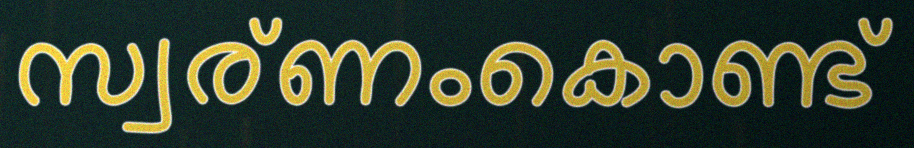
സ്വര്ണംകൊണ്ട്